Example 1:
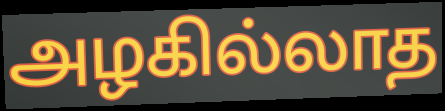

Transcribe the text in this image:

அழகில்லாத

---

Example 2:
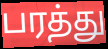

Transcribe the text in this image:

பரத்து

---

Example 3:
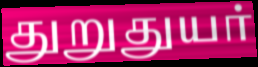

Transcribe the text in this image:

துறுதுயர்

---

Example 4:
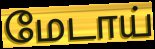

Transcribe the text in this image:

மேடாய்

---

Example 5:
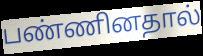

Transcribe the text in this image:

பண்ணினதால்